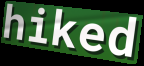
hiked